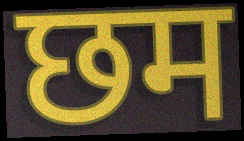
छम